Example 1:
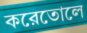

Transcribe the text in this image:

করেতোলে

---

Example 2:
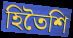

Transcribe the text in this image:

হিতৈশি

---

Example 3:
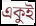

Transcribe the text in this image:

একুই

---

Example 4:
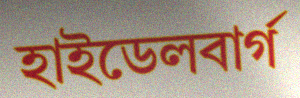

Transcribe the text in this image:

হাইডেলবার্গ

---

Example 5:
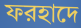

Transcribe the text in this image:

ফরহাদে